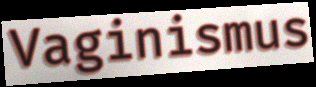
Vaginismus